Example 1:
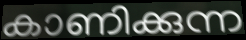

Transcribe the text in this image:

കാണിക്കുന്ന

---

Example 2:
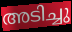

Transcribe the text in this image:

അടിച്ചു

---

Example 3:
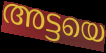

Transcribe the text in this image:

അട്ടയെ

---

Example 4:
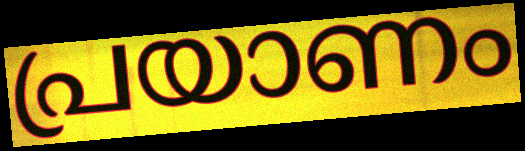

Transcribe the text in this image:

പ്രയാണം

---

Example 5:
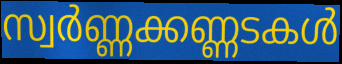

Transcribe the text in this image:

സ്വർണ്ണക്കണ്ണടകൾ